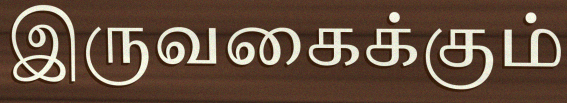
இருவகைக்கும்